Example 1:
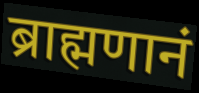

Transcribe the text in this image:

ब्राह्मणानं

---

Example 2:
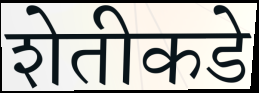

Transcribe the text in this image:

शेतीकडे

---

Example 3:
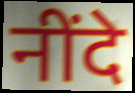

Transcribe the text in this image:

नींदे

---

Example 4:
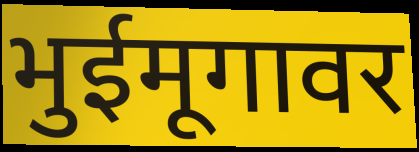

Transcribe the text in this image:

भुईमूगावर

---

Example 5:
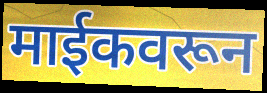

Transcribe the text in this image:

माईकवरून